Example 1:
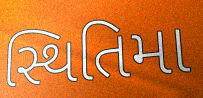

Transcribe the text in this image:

સ્થિતિમા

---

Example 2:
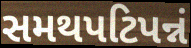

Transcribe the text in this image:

સમથપટિપન્નં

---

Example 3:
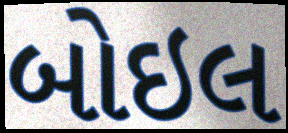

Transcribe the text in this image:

બોઇલ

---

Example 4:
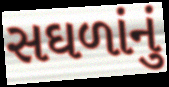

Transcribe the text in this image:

સઘળાંનું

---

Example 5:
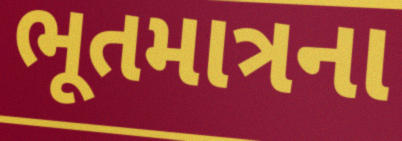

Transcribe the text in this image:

ભૂતમાત્રના